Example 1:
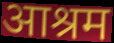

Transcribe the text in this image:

आश्रम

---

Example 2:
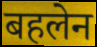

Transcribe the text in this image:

बहलेन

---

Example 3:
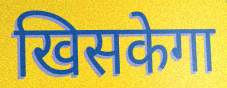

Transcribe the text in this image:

खिसकेगा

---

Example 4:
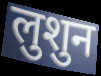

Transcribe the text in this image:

लुशुन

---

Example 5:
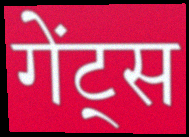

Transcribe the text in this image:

गेंट्स